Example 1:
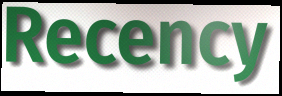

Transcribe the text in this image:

Recency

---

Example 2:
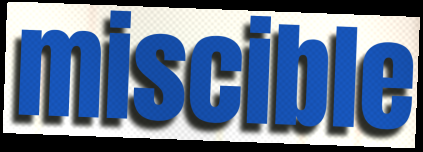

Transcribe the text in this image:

miscible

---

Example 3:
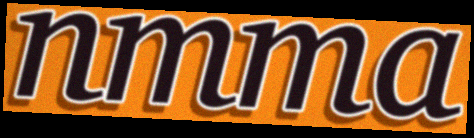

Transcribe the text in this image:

nmma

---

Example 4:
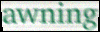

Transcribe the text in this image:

awning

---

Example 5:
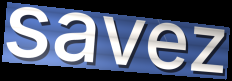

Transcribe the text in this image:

savez